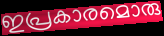
ഇപ്രകാരമൊരു